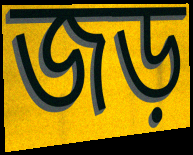
জড়